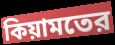
কিয়ামতের